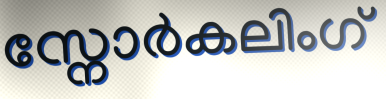
സ്നോർകലിംഗ്